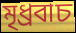
মৃধ্রবাচ